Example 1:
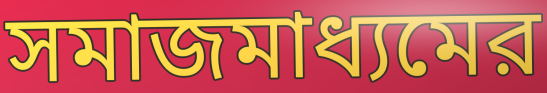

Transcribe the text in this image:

সমাজমাধ্যমের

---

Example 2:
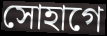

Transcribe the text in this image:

সোহাগে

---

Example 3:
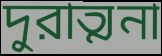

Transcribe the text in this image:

দুরাত্মনা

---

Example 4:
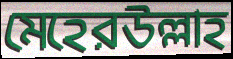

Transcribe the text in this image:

মেহেরউল্লাহ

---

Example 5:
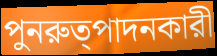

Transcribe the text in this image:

পুনরুত্পাদনকারী